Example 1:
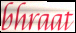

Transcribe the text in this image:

bhraat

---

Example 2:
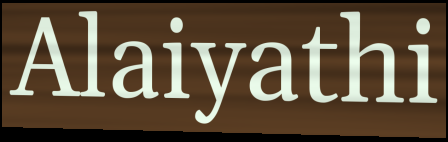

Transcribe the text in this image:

Alaiyathi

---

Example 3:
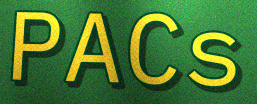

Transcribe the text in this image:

PACs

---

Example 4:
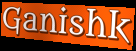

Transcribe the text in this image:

Ganishk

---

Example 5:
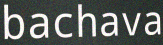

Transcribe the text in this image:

bachava